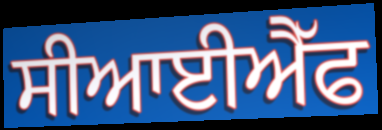
ਸੀਆਈਐੱਫ